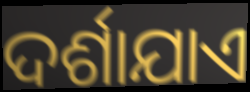
ଦର୍ଶାଯାଏ